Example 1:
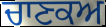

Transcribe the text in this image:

ਚਾਣਕਅ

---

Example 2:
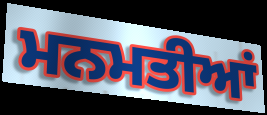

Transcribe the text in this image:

ਮਨਮਤੀਆਂ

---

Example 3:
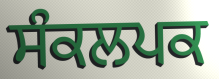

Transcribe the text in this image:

ਸੰਕਲਪਕ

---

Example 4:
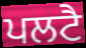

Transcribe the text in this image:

ਪਲਟੈ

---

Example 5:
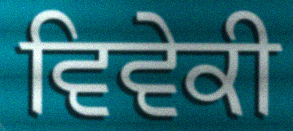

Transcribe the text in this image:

ਵਿਵੇਕੀ